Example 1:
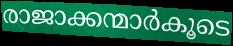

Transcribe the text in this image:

രാജാക്കന്മാർകൂടെ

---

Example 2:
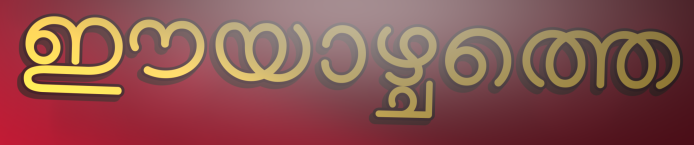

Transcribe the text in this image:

ഈയാഴ്ചത്തെ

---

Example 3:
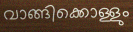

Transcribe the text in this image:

വാങ്ങിക്കൊള്ളും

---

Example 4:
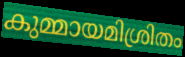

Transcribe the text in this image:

കുമ്മായമിശ്രിതം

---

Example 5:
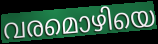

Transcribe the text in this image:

വരമൊഴിയെ